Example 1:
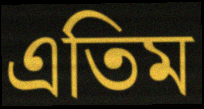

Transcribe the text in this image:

এতিম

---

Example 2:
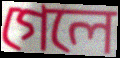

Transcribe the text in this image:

গেলে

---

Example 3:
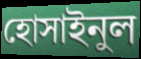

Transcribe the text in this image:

হোসাইনুল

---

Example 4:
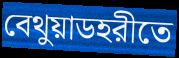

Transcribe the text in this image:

বেথুয়াডহরীতে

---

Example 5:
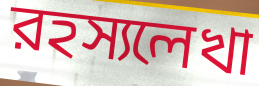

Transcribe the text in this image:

রহস্যলেখা